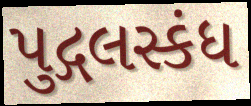
પુદ્ગલસ્કંધ